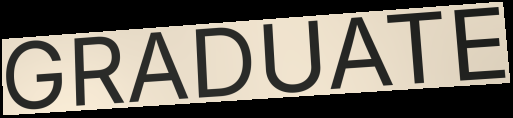
GRADUATE